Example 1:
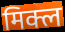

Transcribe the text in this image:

मिक्ल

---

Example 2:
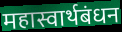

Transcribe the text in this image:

महास्वार्थबंधन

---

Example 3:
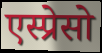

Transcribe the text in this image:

एस्प्रेसो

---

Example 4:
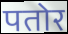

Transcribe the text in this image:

पतोर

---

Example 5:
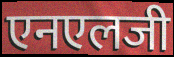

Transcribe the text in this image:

एनएलजी